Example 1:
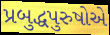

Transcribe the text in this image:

પ્રબુદ્ધપુરુષોએ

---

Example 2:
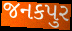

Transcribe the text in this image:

જનકપુર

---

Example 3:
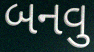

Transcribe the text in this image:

બનવુ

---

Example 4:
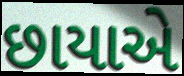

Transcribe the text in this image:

છાયાએ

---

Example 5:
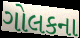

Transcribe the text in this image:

ગોલકના